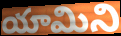
యామిని